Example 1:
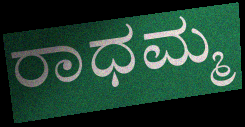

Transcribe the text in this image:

ರಾಧಮ್ಮ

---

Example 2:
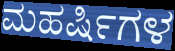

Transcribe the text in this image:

ಮಹರ್ಷಿಗಳ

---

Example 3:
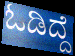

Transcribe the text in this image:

ಓಡಿದ್ದೆ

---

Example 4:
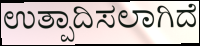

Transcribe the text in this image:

ಉತ್ಪಾದಿಸಲಾಗಿದೆ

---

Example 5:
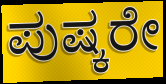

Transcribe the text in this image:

ಪುಷ್ಕರೇ